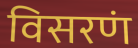
विसरणं